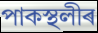
পাকস্থলীৰ